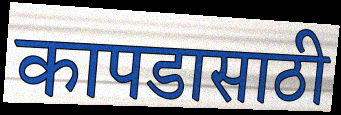
कापडासाठी